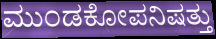
ಮುಂಡಕೋಪನಿಷತ್ತು